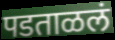
पडताळलं